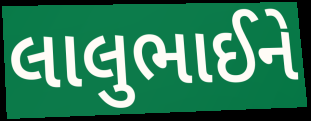
લાલુભાઈને